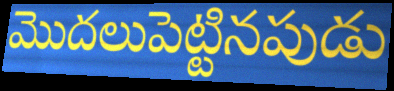
మొదలుపెట్టినపుడు